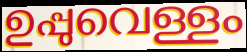
ഉപ്പുവെള്ളം